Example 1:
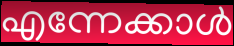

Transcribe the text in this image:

എന്നേക്കാൾ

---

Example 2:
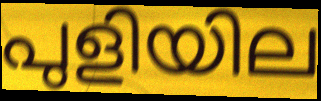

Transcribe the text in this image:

പുളിയില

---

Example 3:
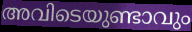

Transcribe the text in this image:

അവിടെയുണ്ടാവും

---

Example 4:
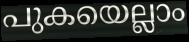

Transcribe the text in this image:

പുകയെല്ലാം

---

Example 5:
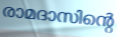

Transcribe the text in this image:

രാമദാസിന്റെ